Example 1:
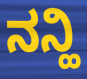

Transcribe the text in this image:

ನನ್ಹಿ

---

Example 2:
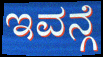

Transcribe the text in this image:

ಇವನ್ಗೆ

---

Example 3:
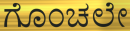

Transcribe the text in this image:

ಗೊಂಚಲೇ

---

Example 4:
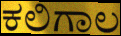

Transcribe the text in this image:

ಕಲಿಗಾಲ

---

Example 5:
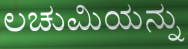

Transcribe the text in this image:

ಲಚುಮಿಯನ್ನು